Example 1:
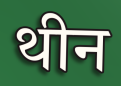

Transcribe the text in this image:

थीन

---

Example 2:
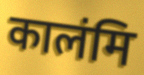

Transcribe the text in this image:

कालंमि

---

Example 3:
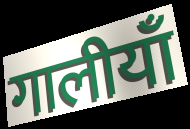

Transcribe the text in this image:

गालीयाँ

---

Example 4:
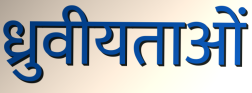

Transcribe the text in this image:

ध्रुवीयताओं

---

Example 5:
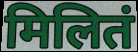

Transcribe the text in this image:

मिलितं